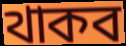
থাকব